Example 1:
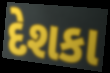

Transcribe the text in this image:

દેશકા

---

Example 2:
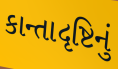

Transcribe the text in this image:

કાન્તાદૃષ્ટિનું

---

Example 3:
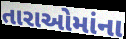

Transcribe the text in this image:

તારાઓમાંના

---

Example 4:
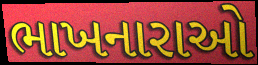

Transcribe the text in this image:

ભાખનારાઓ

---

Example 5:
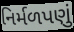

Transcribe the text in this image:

નિર્મળપણું